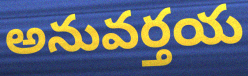
అనువర్తయ